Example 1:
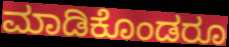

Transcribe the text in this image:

ಮಾಡಿಕೊಂಡರೂ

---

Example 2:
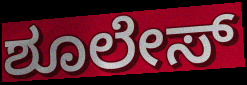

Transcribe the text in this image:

ಶೂಲೇಸ್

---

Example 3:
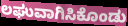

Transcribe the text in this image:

ಲಘುವಾಗಿಸಿಕೊಂಡು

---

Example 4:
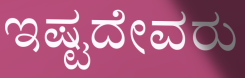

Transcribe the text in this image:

ಇಷ್ಟದೇವರು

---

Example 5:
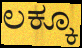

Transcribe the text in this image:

ಲಕ್ಕೂ